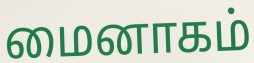
மைனாகம்